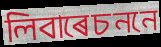
লিবাৰেচননে